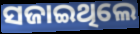
ସଜାଇଥିଲେ